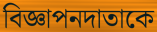
বিজ্ঞাপনদাতাকে